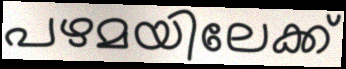
പഴമയിലേക്ക്